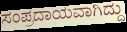
ಸಂಪ್ರದಾಯವಾಗಿದ್ದು